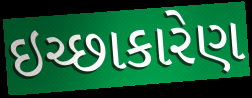
ઇચ્છાકારેણ